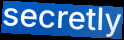
secretly